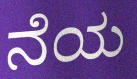
ನೆಯ